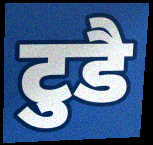
टुडै